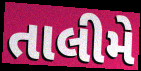
તાલીમે